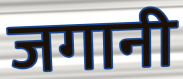
जगानी